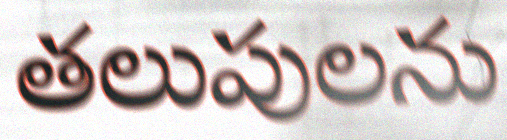
తలుపులను